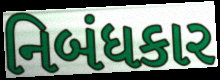
નિબંધકાર